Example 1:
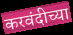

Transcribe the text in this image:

करवंदीच्या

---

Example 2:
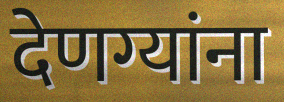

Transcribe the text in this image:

देणग्यांना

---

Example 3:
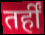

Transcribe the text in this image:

तर्हीं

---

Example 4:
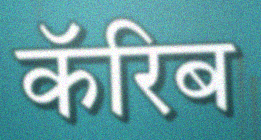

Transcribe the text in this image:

कॅरिब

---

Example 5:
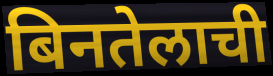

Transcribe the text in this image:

बिनतेलाची